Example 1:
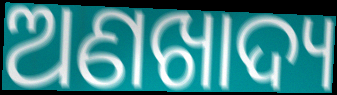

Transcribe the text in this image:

ଅଣଖାଦ୍ୟ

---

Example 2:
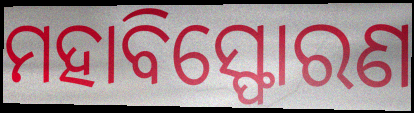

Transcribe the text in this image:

ମହାବିସ୍ଫୋରଣ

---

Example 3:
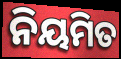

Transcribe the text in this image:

ନିୟମିତ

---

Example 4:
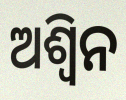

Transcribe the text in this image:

ଅଶ୍ଵିନ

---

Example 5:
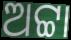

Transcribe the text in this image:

ଅଟ୍ଟା